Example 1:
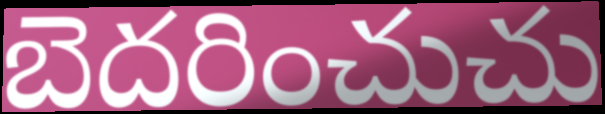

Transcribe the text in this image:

బెదరించుచు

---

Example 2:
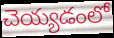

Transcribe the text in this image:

చెయ్యడంలో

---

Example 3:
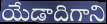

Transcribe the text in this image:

యేడాదిగాని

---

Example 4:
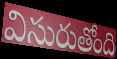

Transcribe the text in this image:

విసురుతోంది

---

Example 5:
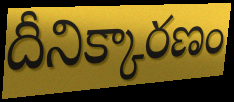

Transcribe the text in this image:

దీనిక్కారణం